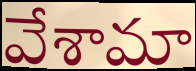
వేశామా